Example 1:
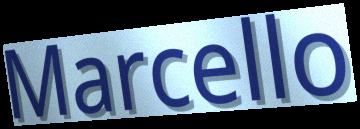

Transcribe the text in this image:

Marcello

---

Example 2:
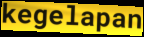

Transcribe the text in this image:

kegelapan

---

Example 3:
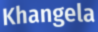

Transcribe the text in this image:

Khangela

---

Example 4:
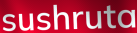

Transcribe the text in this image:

sushruta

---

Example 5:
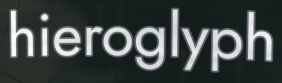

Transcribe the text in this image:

hieroglyph